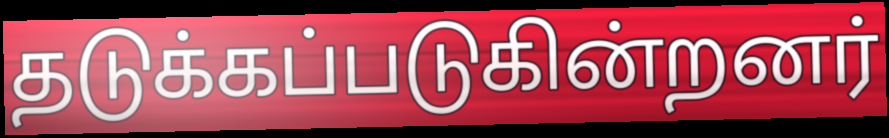
தடுக்கப்படுகின்றனர்